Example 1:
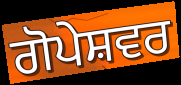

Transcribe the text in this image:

ਗੋਪੇਸ਼ਵਰ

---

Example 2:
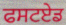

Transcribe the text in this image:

ਫਸਟਏਡ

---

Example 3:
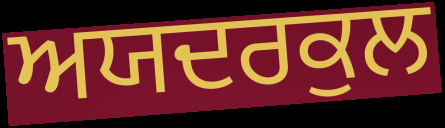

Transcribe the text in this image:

ਅਯਦਰਕੁਲ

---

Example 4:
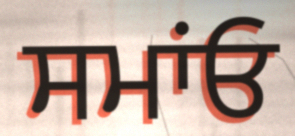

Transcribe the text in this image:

ਸਮਾਂਓ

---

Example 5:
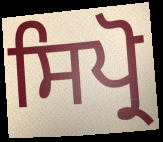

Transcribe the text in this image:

ਸਿਪ੍ਰੋ